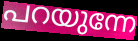
പറയുന്നേ